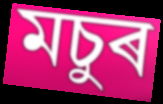
মচুৰ